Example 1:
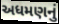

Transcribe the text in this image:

અધમણનું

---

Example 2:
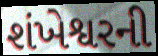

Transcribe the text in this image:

શંખેશ્વરની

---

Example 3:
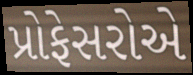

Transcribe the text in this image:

પ્રોફેસરોએ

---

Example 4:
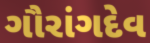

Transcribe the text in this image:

ગૌરાંગદેવ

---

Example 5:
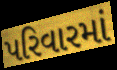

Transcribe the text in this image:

પરિવારમાં